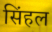
सिंहल